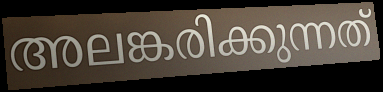
അലങ്കരിക്കുന്നത്